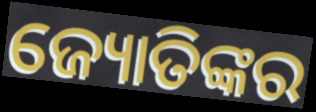
ଜ୍ୟୋତିଙ୍କର